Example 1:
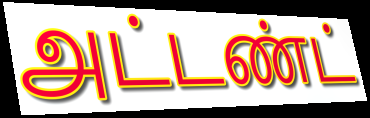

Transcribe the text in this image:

அட்டண்ட்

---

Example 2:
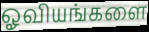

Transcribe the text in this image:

ஓவியங்களை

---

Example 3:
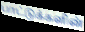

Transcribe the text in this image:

பாட்டுக்களின்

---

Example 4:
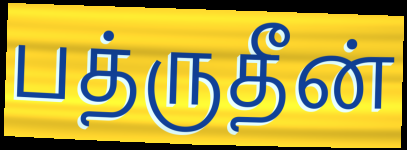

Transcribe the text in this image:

பத்ருதீன்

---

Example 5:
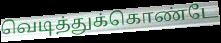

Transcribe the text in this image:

வெடித்துக்கொண்டே